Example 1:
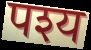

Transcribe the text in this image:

पश्य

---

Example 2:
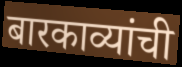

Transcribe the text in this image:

बारकाव्यांची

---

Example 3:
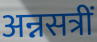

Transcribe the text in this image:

अन्नसत्रीं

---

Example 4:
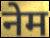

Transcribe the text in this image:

नेम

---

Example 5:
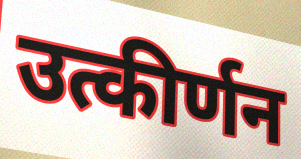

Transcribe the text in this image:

उत्कीर्णन